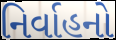
નિર્વાહનો